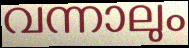
വന്നാലും